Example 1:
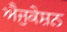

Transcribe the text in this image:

ਐਜੁਕੇਸ਼ਨ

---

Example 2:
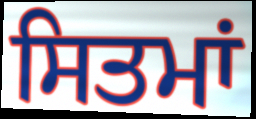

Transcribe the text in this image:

ਸਿਤਮਾਂ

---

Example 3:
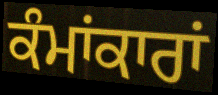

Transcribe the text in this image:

ਕੰਮਾਂਕਾਰਾਂ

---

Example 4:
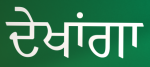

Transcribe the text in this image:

ਦੇਖਾਂਗਾ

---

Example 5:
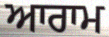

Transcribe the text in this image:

ਆਰਾਮ